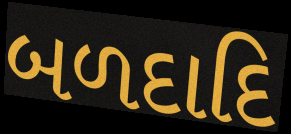
બળદાદિ